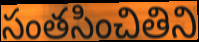
సంతసించితిని